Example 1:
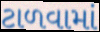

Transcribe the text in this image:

ટાળવામાં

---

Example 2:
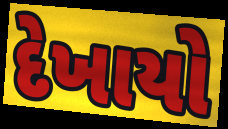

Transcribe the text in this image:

દેખાયો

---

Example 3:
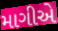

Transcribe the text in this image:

માગીએ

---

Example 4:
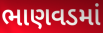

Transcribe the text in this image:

ભાણવડમાં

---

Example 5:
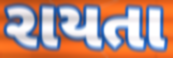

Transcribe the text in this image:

રાયતા